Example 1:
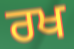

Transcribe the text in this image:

ਰਖ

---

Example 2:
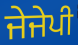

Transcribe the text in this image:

ਜੇਜੇਪੀ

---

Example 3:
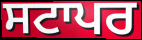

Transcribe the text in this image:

ਸਟਾਪਰ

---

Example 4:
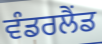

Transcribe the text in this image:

ਵੰਡਰਲੈਂਡ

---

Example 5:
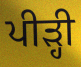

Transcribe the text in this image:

ਪੀੜ੍ਹੀ